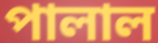
পালাল